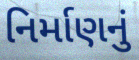
નિર્માણનું